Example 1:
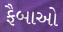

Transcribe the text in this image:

ફૈબાઓ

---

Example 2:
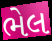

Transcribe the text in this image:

ભેલ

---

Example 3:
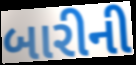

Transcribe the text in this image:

બારીની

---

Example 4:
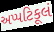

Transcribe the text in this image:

અપ્પટિકૂલં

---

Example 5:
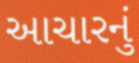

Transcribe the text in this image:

આચારનું